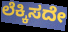
ಲೆಕ್ಕಿಸದೇ